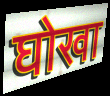
घोखा